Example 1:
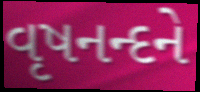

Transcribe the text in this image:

વૃષનન્દને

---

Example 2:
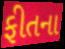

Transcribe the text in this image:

ફીતના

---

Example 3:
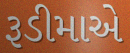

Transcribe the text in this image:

રૂડીમાએ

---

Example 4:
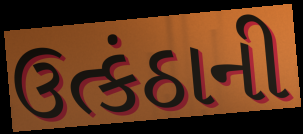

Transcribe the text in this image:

ઉત્કંઠાની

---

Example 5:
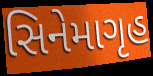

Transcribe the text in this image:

સિનેમાગૃહ